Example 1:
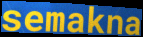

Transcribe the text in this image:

semakna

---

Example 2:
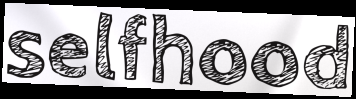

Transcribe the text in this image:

selfhood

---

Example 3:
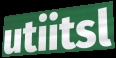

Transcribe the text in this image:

utiitsl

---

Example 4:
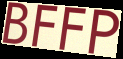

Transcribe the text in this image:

BFFP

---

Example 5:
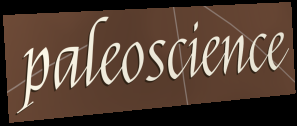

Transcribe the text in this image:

paleoscience